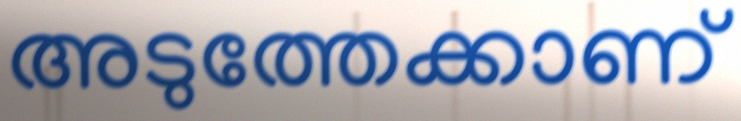
അടുത്തേക്കാണ്